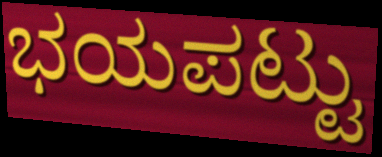
ಭಯಪಟ್ಟು